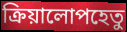
ক্রিয়ালোপহেতু